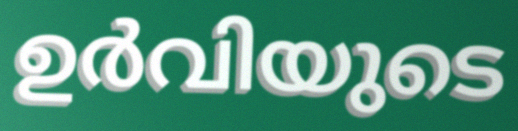
ഉർവിയുടെ